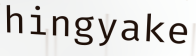
hingyake